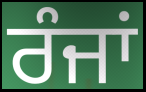
ਰੰਜਾਂ